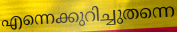
എന്നെക്കുറിച്ചുതന്നെ